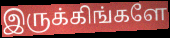
இருக்கிங்களே